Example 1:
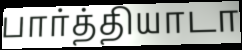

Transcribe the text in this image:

பார்த்தியாடா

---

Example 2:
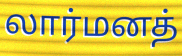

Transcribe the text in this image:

லார்மனத்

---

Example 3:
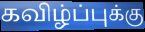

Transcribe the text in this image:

கவிழ்ப்புக்கு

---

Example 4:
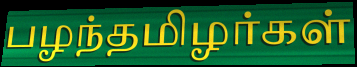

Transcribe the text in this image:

பழந்தமிழர்கள்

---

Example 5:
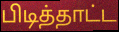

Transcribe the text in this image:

பிடித்தாட்ட